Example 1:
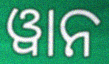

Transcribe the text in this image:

ୱାନ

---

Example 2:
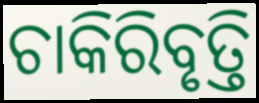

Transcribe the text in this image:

ଚାକିରିବୃତ୍ତି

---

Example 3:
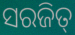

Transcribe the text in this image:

ସରଜିତ୍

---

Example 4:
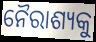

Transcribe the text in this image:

ନୈରାଶ୍ୟକୁ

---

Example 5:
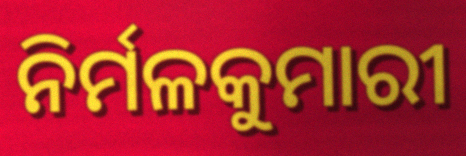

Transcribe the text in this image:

ନିର୍ମଳକୁମାରୀ